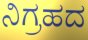
ನಿಗ್ರಹದ